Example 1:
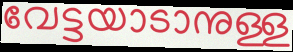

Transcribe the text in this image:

വേട്ടയാടാനുള്ള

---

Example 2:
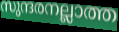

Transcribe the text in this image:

സുന്ദരനല്ലാത്ത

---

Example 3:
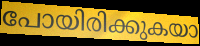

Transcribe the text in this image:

പോയിരിക്കുകയാ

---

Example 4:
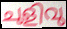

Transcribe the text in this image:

ചുളിവു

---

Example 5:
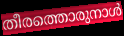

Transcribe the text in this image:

തീരത്തൊരുനാൾ